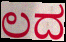
ಲದ